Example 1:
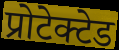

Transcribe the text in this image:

प्रोटेक्टेड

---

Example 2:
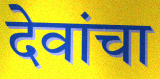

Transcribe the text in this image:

देवांचा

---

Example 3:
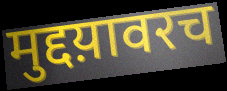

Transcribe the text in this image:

मुद्दय़ावरच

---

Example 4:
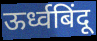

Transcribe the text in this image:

ऊर्ध्वबिंदू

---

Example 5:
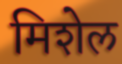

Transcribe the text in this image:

मिशेल